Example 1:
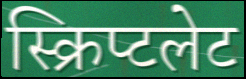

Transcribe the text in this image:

स्क्रिप्टलेट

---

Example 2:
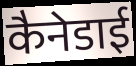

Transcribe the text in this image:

कैनेडाई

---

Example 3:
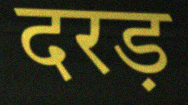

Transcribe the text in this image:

दरड़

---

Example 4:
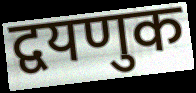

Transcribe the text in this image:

द्वयणुक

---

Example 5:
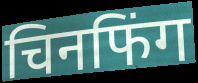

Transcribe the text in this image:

चिनफिंग